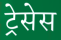
ट्रेसेस